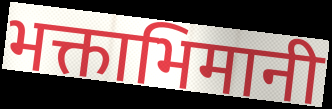
भक्ताभिमानी